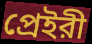
প্রেইরী